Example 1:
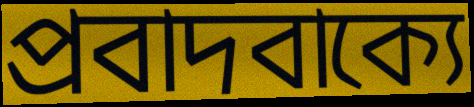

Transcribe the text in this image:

প্রবাদবাক্যে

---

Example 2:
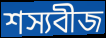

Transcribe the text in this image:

শস্যবীজ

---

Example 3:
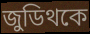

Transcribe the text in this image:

জুডিথকে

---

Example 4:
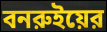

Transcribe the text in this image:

বনরুইয়ের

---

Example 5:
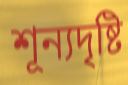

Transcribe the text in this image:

শূন্যদৃষ্টি